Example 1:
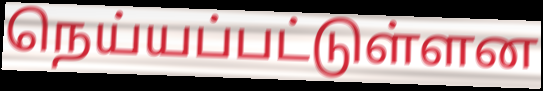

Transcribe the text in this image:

நெய்யப்பட்டுள்ளன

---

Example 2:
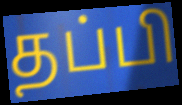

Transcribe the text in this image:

தப்பி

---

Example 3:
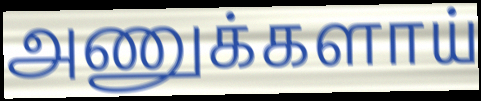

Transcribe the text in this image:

அணுக்களாய்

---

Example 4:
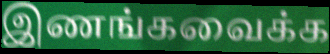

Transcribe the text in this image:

இணங்கவைக்க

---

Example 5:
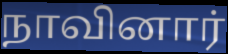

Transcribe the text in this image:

நாவினார்